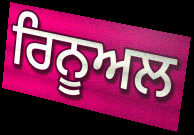
ਰਿਨੂਅਲ